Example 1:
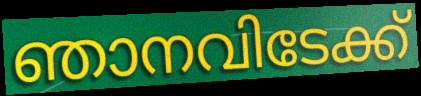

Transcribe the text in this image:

ഞാനവിടേക്ക്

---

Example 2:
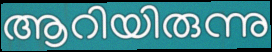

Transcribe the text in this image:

ആറിയിരുന്നു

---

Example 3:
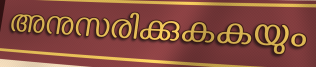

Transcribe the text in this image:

അനുസരിക്കുകകയും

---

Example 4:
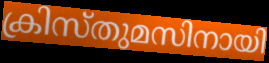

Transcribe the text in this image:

ക്രിസ്തുമസിനായി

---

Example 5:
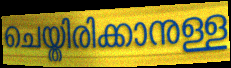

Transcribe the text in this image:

ചെയ്തിരിക്കാനുള്ള